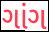
ગાંગ